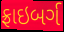
ફ્રાઇબર્ગ